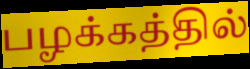
பழக்கத்தில்